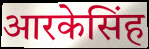
आरकेसिंह